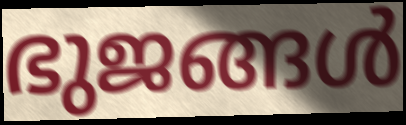
ഭുജങ്ങൾ